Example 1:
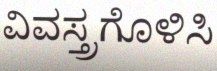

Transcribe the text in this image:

ವಿವಸ್ತ್ರಗೊಳಿಸಿ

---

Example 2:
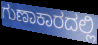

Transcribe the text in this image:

ಗುಣಾಕಾರದಲ್ಲಿ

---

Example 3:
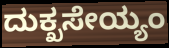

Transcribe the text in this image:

ದುಕ್ಖಸೇಯ್ಯಂ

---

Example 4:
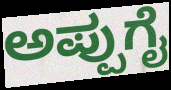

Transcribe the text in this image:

ಅಪ್ಪುಗೈ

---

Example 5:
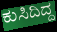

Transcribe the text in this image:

ಕುಸಿದಿದ್ದ